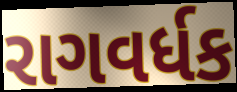
રાગવર્ધક